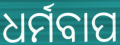
ଧର୍ମବାପ